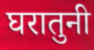
घरातुनी